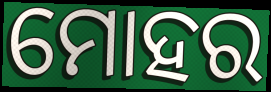
ମୋହର